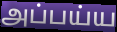
அப்பய்ய